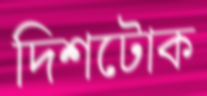
দিশটোক